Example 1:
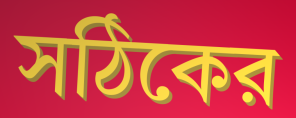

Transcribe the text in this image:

সঠিকের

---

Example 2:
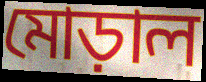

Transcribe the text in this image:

মোড়াল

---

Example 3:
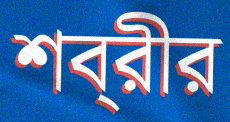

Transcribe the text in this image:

শব্‌রীর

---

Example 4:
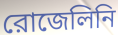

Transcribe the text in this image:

রোজেলিনি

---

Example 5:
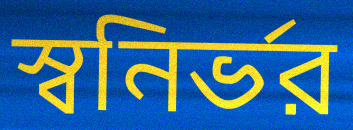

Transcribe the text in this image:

স্বনির্ভর